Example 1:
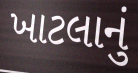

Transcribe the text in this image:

ખાટલાનું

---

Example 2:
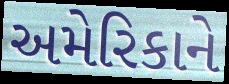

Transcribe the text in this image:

અમેરિકાને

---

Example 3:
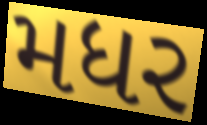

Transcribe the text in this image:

મધર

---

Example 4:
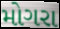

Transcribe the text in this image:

મોગરા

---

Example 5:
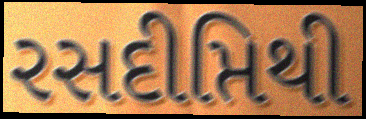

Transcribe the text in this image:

રસદીપ્તિથી